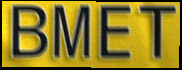
BMET